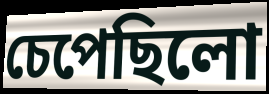
চেপেছিলো